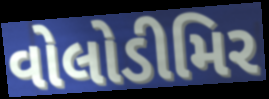
વોલોડીમિર